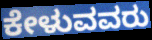
ಕೇಳುವವರು